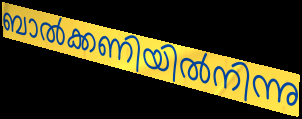
ബാൽക്കണിയിൽനിന്നു